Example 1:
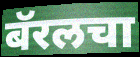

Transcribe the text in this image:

बॅरलचा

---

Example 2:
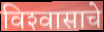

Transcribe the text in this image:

विश्वासाचे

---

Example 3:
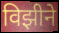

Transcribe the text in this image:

विझीने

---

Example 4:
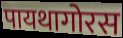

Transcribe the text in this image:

पायथागोरस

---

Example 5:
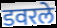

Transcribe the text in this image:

डवरले